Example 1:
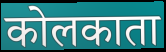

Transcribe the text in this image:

कोलकाता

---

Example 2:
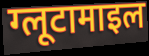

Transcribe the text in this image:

ग्लूटामाइल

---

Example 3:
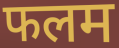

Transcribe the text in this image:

फलम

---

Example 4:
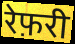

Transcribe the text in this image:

रेफ़री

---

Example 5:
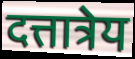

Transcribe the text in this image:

दत्तात्रेय